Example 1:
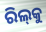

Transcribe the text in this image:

ରିଲ୍‌କୁ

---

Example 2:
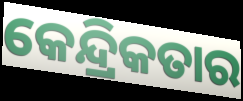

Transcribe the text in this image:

କେନ୍ଦ୍ରିକତାର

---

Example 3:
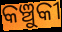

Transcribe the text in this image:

କଞ୍ଚୁକୀ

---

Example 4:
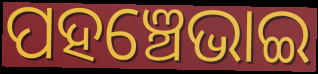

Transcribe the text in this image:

ପହଞ୍ଚେଭାଇ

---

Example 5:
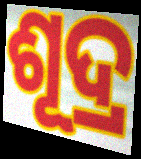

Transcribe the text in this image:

ଶୂଦ୍ର